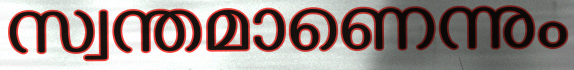
സ്വന്തമാണെന്നും